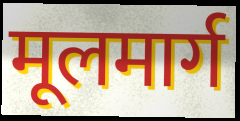
मूलमार्ग